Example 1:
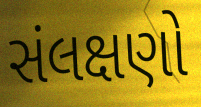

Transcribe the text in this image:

સંલક્ષણો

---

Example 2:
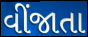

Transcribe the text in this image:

વીંજાતા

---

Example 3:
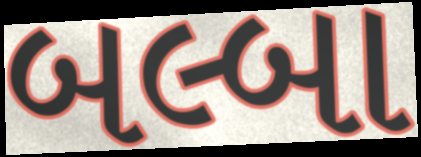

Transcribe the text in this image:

બલ્બા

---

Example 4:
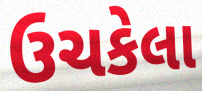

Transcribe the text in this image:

ઉચકેલા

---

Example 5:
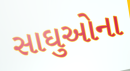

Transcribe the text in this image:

સાઘુઓના